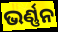
ଭର୍ଣ୍ଣନ